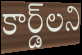
కార్డ్‌లని